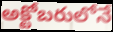
అక్టోబరులోనే